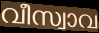
വീസ്വാവ